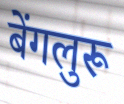
बेंगलुरू